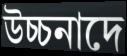
উচ্চনাদে